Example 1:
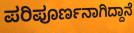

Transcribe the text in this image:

ಪರಿಪೂರ್ಣನಾಗಿದ್ದಾನೆ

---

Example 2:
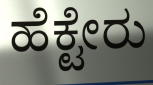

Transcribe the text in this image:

ಹೆಕ್ಟೇರು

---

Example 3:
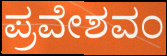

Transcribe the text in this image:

ಪ್ರವೇಶವಂ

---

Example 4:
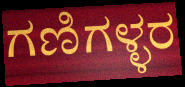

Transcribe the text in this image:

ಗಣಿಗಳ್ಳರ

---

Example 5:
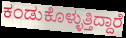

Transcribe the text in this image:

ಕಂಡುಕೊಳ್ಳುತ್ತಿದ್ದಾರೆ